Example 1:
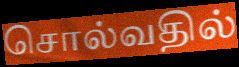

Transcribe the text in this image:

சொல்வதில்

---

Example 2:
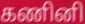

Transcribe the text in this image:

கணினி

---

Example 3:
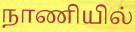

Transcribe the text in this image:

நாணியில்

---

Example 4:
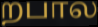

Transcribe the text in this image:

றபால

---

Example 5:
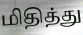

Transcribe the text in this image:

மிதித்து